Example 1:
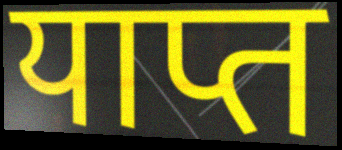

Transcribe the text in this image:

याप्त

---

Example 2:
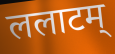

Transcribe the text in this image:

ललाटम्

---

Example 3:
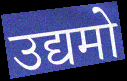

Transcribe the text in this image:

उद्यमो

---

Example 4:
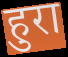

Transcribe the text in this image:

हुरा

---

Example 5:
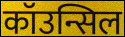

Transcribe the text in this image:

कॉउन्सिल